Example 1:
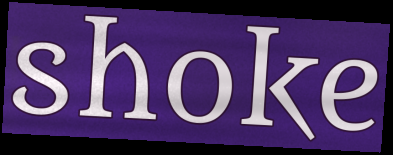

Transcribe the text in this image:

shoke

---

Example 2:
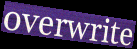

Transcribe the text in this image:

overwrite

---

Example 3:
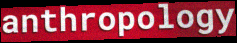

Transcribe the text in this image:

anthropology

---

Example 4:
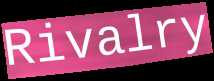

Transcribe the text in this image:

Rivalry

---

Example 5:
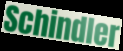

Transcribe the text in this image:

Schindler